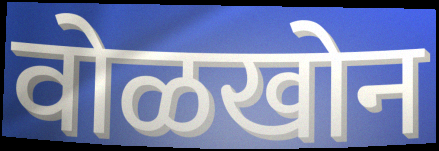
वोळखोन